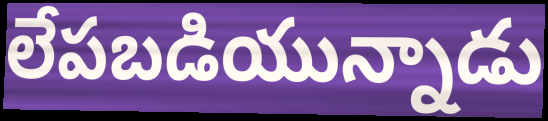
లేపబడియున్నాడు